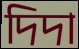
দিদা